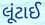
લૂંટાઈ